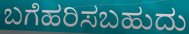
ಬಗೆಹರಿಸಬಹುದು